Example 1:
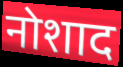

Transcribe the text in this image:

नोशाद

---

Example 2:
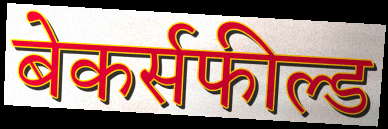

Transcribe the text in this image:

बेकर्सफील्ड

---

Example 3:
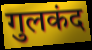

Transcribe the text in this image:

गुलकंद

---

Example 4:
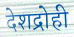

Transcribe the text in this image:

देशद्रोही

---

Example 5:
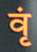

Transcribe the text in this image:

वृं